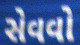
સેવવો